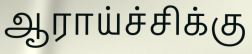
ஆராய்ச்சிக்கு